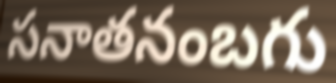
సనాతనంబగు